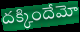
దక్కిందేమో